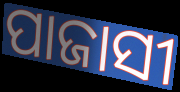
ପାଜାସୀ